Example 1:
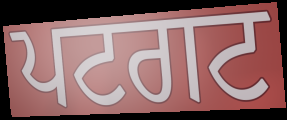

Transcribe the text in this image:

ਪਟਗਟ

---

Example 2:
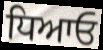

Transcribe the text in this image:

ਧਿਆਓ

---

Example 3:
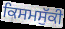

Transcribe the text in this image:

ਕਿਸਮਸੁੱਕੀ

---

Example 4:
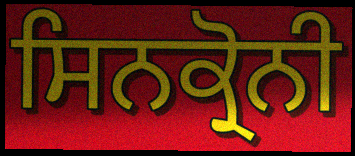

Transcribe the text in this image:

ਸਿਨਕ੍ਰੋਨੀ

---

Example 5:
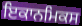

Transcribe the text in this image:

ਇਕਾਨਮਿਕਸ